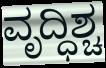
ವೃದ್ಧಿಶ್ಚ